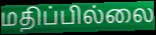
மதிப்பில்லை